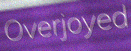
Overjoyed